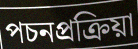
পচনপ্রক্রিয়া